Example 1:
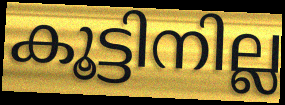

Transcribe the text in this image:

കൂട്ടിനില്ല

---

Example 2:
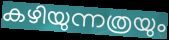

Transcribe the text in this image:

കഴിയുന്നത്രയും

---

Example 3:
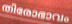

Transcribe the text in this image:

തിരോഭാവം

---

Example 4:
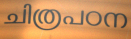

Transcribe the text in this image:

ചിത്രപഠന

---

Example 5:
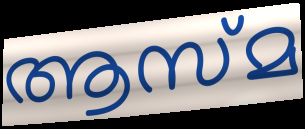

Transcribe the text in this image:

ആസ്മ